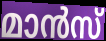
മാൻസ്